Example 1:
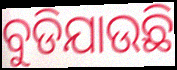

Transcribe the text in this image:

ବୁଡିଯାଉଛି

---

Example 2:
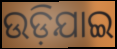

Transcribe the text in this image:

ଉଡ଼ିଯାଇ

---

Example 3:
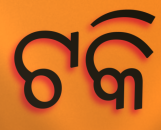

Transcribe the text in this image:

ଟକି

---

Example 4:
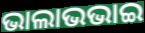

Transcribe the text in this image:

ଭାଲାଭଭାଇ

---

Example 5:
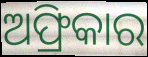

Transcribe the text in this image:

ଅଫ୍ରିକାର